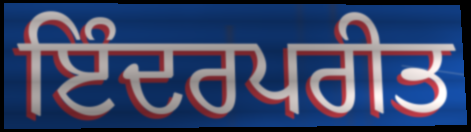
ਇੰਦਰਪਰੀਤ